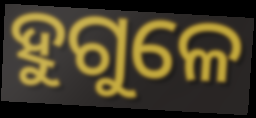
ହୁଗୁଳେ